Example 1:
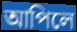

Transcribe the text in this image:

আপিলে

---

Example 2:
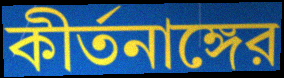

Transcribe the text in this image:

কীর্তনাঙ্গের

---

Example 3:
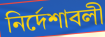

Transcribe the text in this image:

নির্দেশাবলী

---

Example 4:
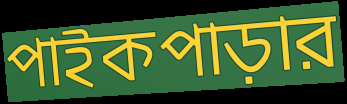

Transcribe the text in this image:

পাইকপাড়ার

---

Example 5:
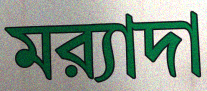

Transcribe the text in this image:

মর‍্যাদা